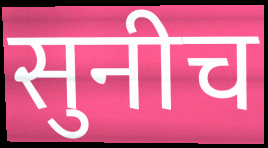
सुनीच